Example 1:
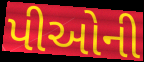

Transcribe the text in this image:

પીઓની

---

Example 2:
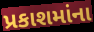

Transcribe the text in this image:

પ્રકાશમાંના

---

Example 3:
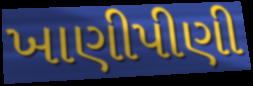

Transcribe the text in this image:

ખાણીપીણી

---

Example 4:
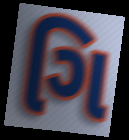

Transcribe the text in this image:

ગિ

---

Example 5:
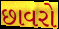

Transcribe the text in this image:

છાવરો